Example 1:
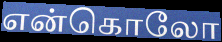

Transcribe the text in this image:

என்கொலோ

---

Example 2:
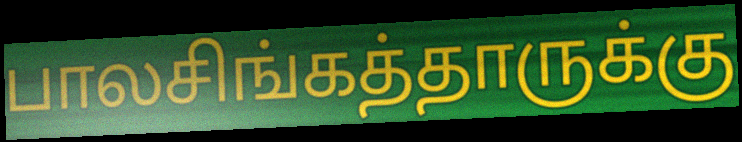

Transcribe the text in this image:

பாலசிங்கத்தாருக்கு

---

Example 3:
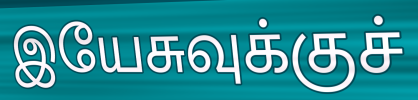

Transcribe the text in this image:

இயேசுவுக்குச்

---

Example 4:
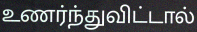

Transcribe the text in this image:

உணர்ந்துவிட்டால்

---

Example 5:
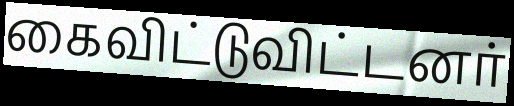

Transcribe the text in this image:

கைவிட்டுவிட்டனர்